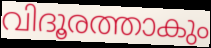
വിദൂരത്താകും